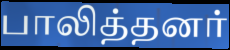
பாலித்தனர்